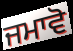
ਜਮਾਵੋ